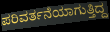
ಪರಿವರ್ತನೆಯಾಗುತ್ತಿದ್ದ